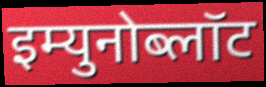
इम्युनोब्लॉट